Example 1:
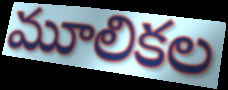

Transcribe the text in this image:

మూలికల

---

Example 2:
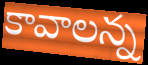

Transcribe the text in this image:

కావాలన్న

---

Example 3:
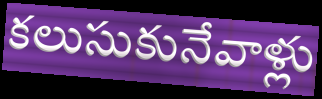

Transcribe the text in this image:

కలుసుకునేవాళ్లు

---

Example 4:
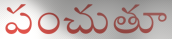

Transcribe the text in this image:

పంచుతూ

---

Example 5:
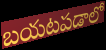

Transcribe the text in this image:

బయటపడాలో